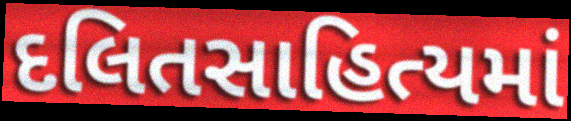
દલિતસાહિત્યમાં